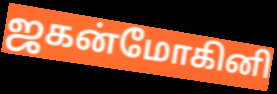
ஜகன்மோகினி